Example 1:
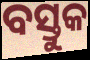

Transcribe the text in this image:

ବସ୍ତୁକ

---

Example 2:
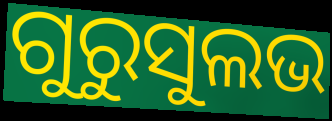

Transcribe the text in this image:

ଗୁରୁସୁଲଭ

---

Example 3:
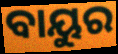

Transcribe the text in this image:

ବାୟୁର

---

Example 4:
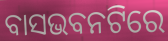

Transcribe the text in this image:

ବାସଭବନଟିରେ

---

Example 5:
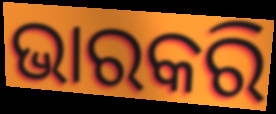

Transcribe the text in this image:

ଭାରକରି